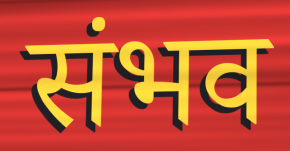
संभव